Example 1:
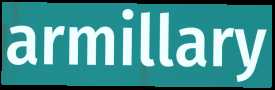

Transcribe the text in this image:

armillary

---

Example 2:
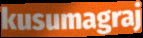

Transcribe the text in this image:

kusumagraj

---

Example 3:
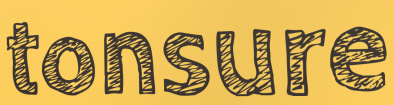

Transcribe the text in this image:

tonsure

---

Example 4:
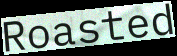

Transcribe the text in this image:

Roasted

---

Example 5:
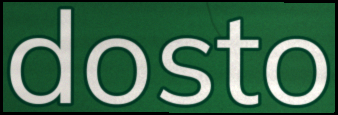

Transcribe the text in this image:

dosto